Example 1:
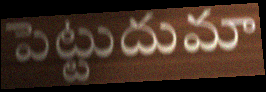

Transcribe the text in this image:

పెట్టుదుమా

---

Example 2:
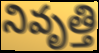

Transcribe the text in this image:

నివృత్తి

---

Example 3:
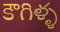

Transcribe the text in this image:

కౌగిళ్ళ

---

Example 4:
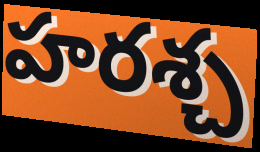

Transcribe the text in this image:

హరశ్చ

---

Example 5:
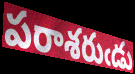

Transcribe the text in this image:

పరాశరుఁడు